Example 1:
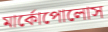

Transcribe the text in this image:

মার্কোপোলোস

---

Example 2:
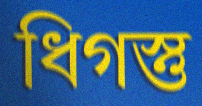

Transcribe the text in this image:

ধিগস্তু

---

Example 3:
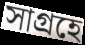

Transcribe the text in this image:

সাগ্রহে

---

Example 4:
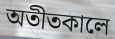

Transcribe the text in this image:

অতীতকালে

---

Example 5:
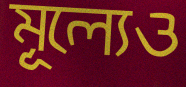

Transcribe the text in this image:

মূল্যেও